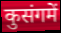
कुसंगमें